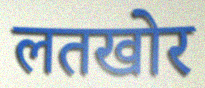
लतखोर